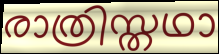
രാത്രിസ്തഥാ